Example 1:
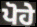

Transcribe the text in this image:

ਪੋਹੇ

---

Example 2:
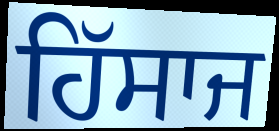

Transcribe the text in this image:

ਹਿੱਸਾਜ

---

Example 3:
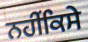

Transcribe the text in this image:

ਨਹੀਂਕਿਸੇ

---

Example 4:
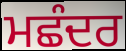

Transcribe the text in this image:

ਮਛੰਦਰ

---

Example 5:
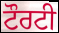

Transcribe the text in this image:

ਟੌਰਟੀ